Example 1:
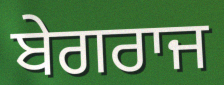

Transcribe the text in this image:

ਬੇਗਰਾਜ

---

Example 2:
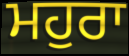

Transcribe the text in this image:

ਮਹੁਰਾ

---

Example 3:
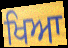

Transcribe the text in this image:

ਖਿਆ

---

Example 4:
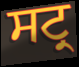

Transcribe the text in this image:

ਸਟ੍ਰ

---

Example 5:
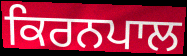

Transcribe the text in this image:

ਕਿਰਨਪਾਲ